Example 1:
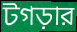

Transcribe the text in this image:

টগড়ার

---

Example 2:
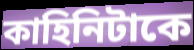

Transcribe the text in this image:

কাহিনিটাকে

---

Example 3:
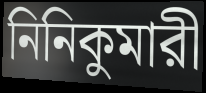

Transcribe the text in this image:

নিনিকুমারী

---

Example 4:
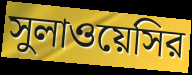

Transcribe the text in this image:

সুলাওয়েসির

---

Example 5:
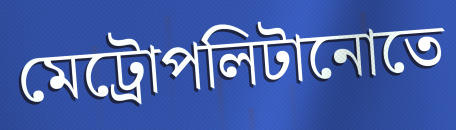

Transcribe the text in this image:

মেট্রোপলিটানোতে